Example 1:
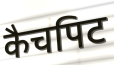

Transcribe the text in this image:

कैचपिट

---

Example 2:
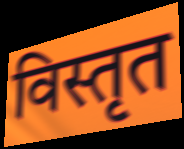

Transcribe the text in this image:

विस्तृत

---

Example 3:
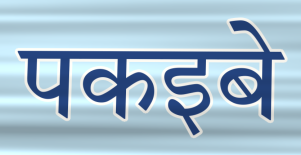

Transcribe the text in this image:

पकइबे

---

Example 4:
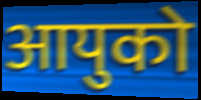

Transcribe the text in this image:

आयुको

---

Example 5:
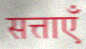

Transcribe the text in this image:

सत्ताएँ